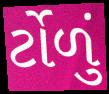
ર્ટોળું